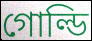
গোল্ডি